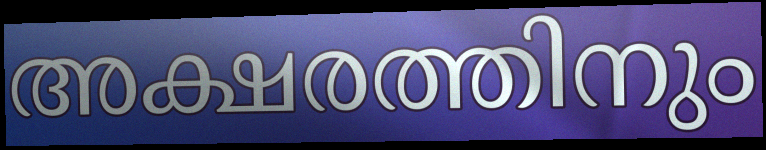
അക്ഷരത്തിനും